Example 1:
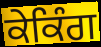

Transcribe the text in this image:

ਕੇਕਿੰਗ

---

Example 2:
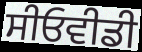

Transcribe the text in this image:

ਸੀਓਵੀਡੀ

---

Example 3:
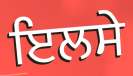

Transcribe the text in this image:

ਇਲਸੇ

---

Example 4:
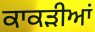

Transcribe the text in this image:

ਕਾਕੜੀਆਂ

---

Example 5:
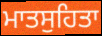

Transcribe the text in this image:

ਮਾਤਸੁਹਿਤਾ